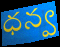
ధన్వ